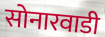
सोनारवाडी